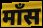
मॉंस